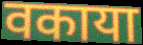
वकाया